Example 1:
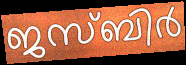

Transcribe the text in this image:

ജസ്ബിർ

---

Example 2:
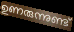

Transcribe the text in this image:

ഉണരുന്നുണ്ട്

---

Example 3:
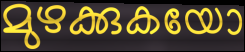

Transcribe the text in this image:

മുഴക്കുകയോ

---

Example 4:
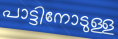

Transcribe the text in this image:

പാട്ടിനോടുള്ള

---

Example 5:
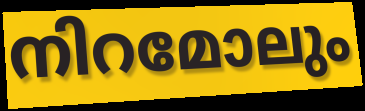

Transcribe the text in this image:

നിറമോലും